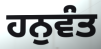
ਹਨੁਵੰਤ